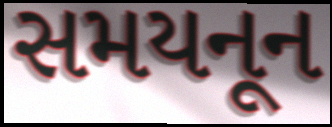
સમયનૂન